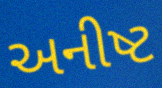
અનીષ્ટ